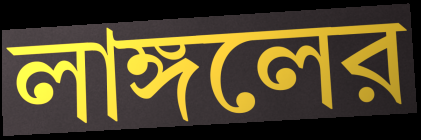
লাঙ্গলের